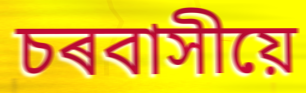
চৰবাসীয়ে